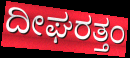
ದೀಘರತ್ತಂ